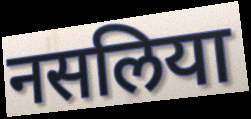
नसलिया